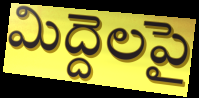
మిద్దెలపై